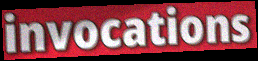
invocations